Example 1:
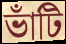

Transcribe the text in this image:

ভাঁটি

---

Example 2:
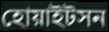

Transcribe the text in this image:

হোয়াইটসন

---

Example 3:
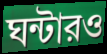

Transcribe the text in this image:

ঘন্টারও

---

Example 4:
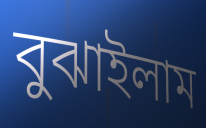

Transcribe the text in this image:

বুঝাইলাম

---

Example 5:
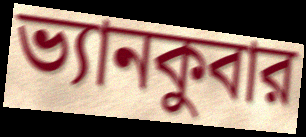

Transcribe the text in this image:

ভ্যানকুবার